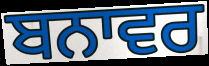
ਬਨਾਵਰ